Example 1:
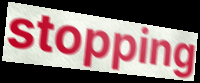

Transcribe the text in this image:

stopping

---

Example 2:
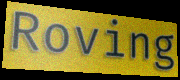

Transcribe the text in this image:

Roving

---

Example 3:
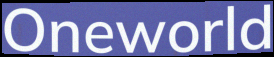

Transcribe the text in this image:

Oneworld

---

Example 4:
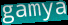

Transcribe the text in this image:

gamya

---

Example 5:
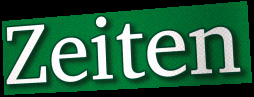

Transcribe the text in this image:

Zeiten